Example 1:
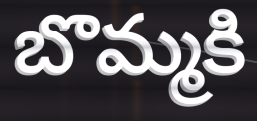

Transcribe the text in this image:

బొమ్మకి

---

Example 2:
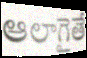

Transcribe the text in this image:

ఆలాగైతే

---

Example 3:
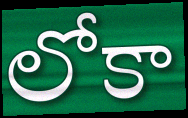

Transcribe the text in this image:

లోకా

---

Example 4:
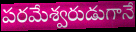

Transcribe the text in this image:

పరమేశ్వరుడుగానే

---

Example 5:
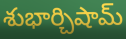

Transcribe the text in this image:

శుభార్చిషామ్